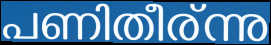
പണിതീര്ന്നു